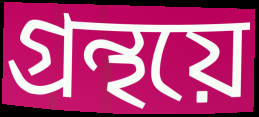
গ্ৰন্থয়ে